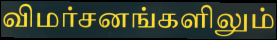
விமர்சனங்களிலும்